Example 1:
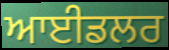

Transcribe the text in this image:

ਆਈਡਲਰ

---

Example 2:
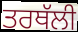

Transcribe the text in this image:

ਤਰਥੱਲੀ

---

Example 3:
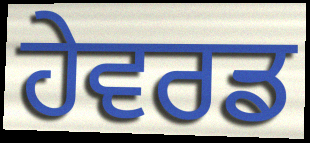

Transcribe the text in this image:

ਹੇਵਰਡ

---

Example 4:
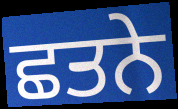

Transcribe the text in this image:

ਛਤਨੇ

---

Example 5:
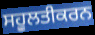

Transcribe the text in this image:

ਸਹੂਲਤੀਕਰਨ